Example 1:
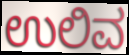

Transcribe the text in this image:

ಉಲಿವ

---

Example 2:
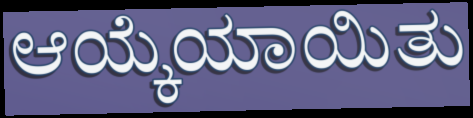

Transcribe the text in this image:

ಆಯ್ಕೆಯಾಯಿತು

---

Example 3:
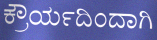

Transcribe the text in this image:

ಕ್ರೌರ್ಯದಿಂದಾಗಿ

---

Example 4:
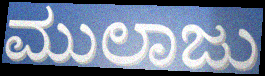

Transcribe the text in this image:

ಮುಲಾಜು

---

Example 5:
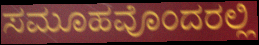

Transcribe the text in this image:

ಸಮೂಹವೊಂದರಲ್ಲಿ